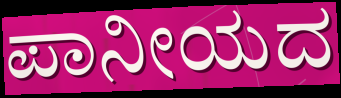
ಪಾನೀಯದ